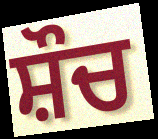
ਸ਼ੌਚ